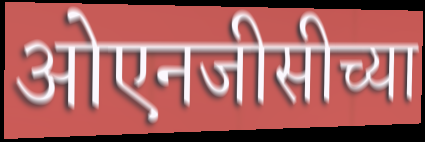
ओएनजीसीच्या